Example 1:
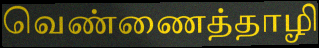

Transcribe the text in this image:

வெண்ணைத்தாழி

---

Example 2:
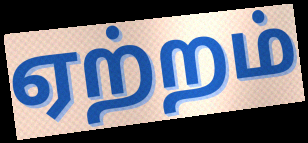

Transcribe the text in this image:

ஏற்றம்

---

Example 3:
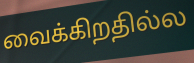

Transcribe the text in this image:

வைக்கிறதில்ல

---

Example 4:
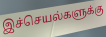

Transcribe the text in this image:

இச்செயல்களுக்கு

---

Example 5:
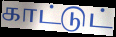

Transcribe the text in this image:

காட்டுட்